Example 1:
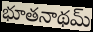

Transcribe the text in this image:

భూతనాథమ్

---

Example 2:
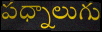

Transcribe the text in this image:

పధ్నాలుగు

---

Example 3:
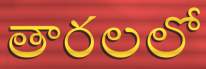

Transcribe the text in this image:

తారలలో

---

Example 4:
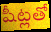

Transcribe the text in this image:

షీట్లతో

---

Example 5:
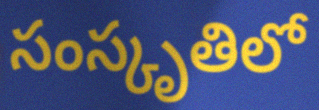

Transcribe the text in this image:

సంస్కృతిలో